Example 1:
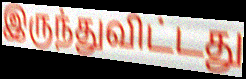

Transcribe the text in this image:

இருந்துவிட்டது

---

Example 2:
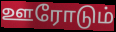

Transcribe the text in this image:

ஊரோடும்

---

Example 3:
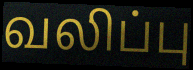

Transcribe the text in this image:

வலிப்பு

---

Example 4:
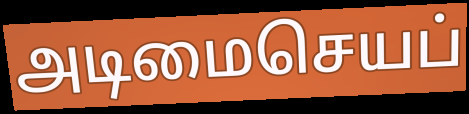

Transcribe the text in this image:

அடிமைசெயப்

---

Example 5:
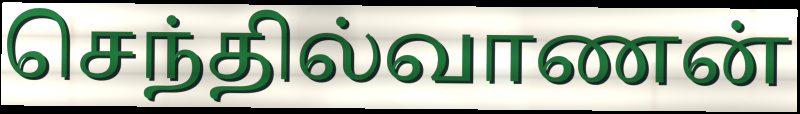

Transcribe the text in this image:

செந்தில்வாணன்